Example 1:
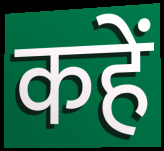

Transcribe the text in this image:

कहें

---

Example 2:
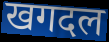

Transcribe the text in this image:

खगदल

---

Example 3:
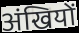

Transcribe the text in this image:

अंखियों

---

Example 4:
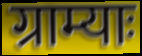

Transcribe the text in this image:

ग्राम्याः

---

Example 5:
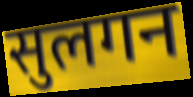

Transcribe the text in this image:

सुलगन